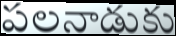
పలనాడుకు